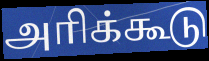
அரிக்கூடு